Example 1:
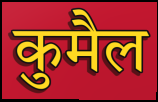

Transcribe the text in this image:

कुमैल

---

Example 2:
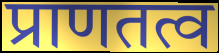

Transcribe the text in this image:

प्राणतत्व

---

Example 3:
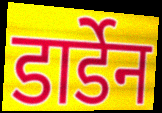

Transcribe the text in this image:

डार्डेन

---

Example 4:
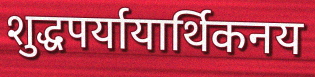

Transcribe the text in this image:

शुद्धपर्यायार्थिकनय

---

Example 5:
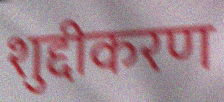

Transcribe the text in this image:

शुद्दीकरण